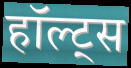
हॉल्ट्स